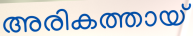
അരികത്തായ്